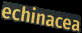
echinacea